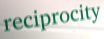
reciprocity